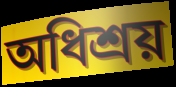
অধিশ্রয়